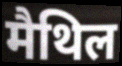
मैथिल